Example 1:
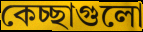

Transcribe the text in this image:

কেচ্ছাগুলো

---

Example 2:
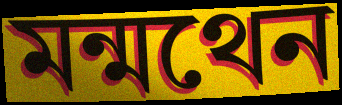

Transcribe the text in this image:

মন্মথেন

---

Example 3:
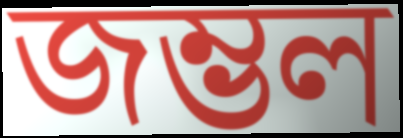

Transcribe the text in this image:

জম্ভল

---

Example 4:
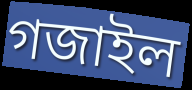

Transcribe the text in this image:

গজাইল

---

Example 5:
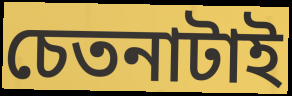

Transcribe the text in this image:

চেতনাটাই